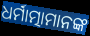
ଧର୍ମାତ୍ମାମାନଙ୍କ